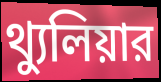
থ্যুলিয়ার